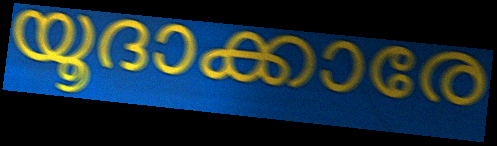
യൂദാക്കാരേ